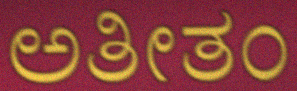
ಅತೀತಂ